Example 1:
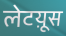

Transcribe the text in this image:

लेटय़ूस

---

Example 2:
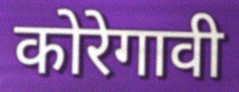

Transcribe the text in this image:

कोरेगावी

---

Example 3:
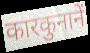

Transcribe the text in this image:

कारकुनानें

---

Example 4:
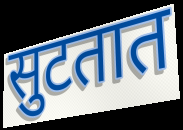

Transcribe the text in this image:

सुटतात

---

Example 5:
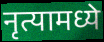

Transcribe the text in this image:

नृत्यामध्ये